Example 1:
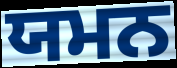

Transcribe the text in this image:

ਯਮਨ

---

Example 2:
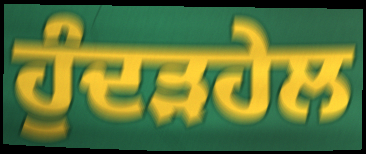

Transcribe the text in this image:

ਹੁੰਦੜਹੇਲ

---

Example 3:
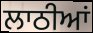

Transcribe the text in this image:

ਲਾਠੀਆਂ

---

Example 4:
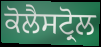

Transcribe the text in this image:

ਕੋਲੈਸਟ੍ਰੋਲ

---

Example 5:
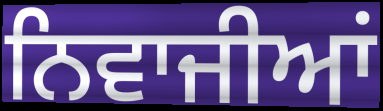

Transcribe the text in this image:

ਨਿਵਾਜੀਆਂ